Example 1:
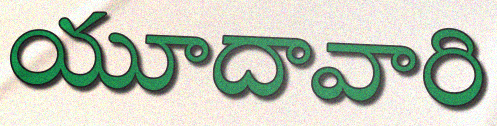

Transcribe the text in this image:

యూదావారి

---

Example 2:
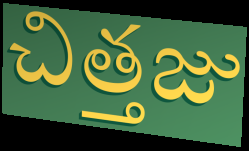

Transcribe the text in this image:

చిత్తజు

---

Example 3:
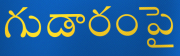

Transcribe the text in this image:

గుడారంపై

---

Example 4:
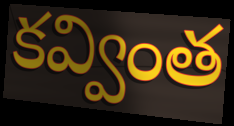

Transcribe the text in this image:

కవ్వింత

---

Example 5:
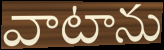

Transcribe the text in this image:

వాటాను